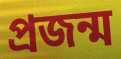
প্ৰজন্ম